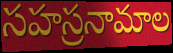
సహస్రనామాల